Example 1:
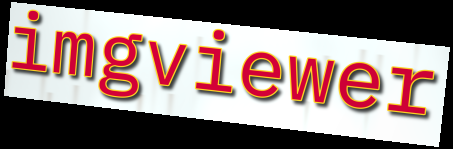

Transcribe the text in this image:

imgviewer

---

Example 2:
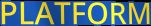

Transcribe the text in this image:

PLATFORM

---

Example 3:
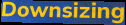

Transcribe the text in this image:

Downsizing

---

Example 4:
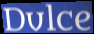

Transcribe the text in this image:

Dulce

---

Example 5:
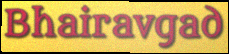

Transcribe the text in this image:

Bhairavgad